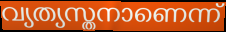
വ്യത്യസ്തനാണെന്ന്